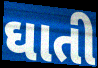
ઘાતી